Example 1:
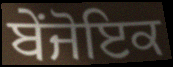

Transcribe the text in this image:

ਬੇਂਜੋਇਕ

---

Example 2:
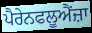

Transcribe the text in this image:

ਪੈਰੇਨਫਲੂਐਂਜ਼ਾ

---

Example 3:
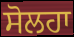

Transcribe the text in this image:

ਸੋਲਹਾ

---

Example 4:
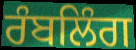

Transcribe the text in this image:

ਰੰਬਲਿੰਗ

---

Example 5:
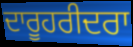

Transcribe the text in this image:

ਦਾਰੂਹਰੀਦਰਾ